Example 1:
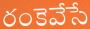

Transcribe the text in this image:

రంకెవేసే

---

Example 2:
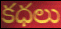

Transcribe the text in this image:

కధలు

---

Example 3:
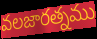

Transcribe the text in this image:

వలజారత్నము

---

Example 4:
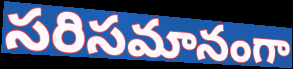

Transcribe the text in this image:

సరిసమానంగా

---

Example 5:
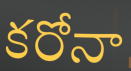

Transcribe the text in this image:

కరోనా